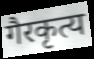
गैरकृत्य